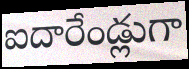
ఐదారేండ్లుగా